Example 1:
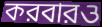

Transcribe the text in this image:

করবারও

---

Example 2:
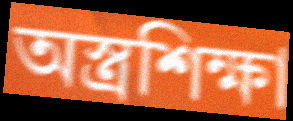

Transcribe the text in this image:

অস্ত্রশিক্ষা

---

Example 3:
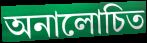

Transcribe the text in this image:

অনালোচিত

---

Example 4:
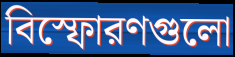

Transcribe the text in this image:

বিস্ফোরণগুলো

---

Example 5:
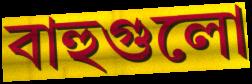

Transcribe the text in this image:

বাহুগুলো